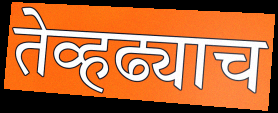
तेव्हढ्याच